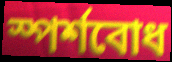
স্পর্শবোধ